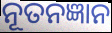
ନୂତନଜ୍ଞାନ